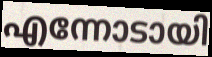
എന്നോടായി